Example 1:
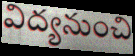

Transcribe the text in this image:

విద్యనుంచి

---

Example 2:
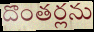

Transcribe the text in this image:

దొంతర్లను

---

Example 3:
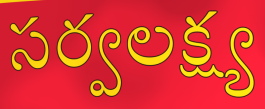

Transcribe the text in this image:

సర్వలక్ష్య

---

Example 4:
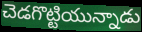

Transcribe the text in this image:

చెడగొట్టియున్నాడు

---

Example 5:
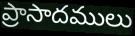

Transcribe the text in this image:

ప్రాసాదములు